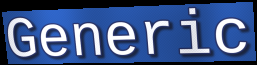
Generic